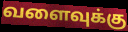
வளைவுக்கு